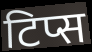
टिप्‍स